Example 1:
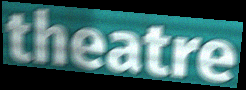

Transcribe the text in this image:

theatre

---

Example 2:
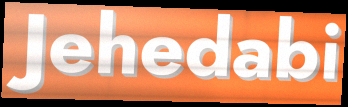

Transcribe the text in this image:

Jehedabi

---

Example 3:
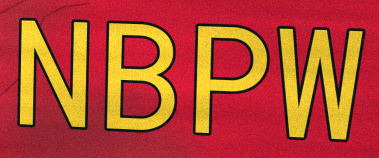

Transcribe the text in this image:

NBPW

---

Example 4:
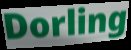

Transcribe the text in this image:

Dorling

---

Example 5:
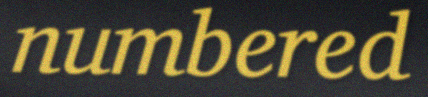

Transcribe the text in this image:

numbered